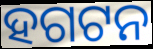
ହଗଟନ